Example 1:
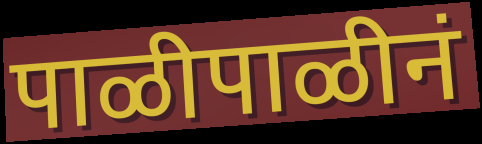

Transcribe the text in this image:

पाळीपाळीनं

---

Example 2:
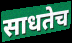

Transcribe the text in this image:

साधतेच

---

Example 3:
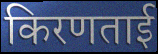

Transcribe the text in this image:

किरणताई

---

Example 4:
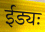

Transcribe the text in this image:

ईड्यः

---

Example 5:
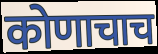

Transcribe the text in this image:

कोणाचाच